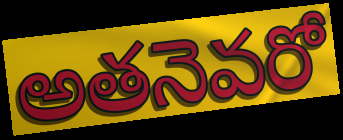
అతనెవరో